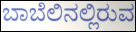
ಬಾಬೆಲಿನಲ್ಲಿರುವ